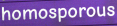
homosporous